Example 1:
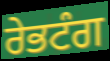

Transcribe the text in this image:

ਰੇਭਟੰਗ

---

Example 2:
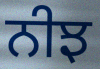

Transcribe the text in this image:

ਨੀਝ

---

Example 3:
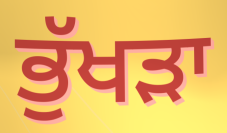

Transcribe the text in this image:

ਭੁੱਖੜਾ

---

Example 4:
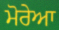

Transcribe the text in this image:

ਮੋਰੇਆ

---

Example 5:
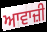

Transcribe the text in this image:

ਆਵਾਜ਼ੀ